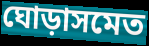
ঘোড়াসমেত